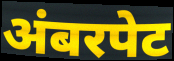
अंबरपेट